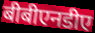
बीबीएनडीए